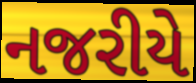
નજરીયે